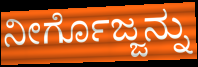
ನೀರ್ಗೊಜ್ಜನ್ನು